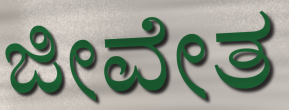
ಜೀವೇತ